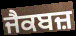
ਜੈਕਬਜ਼